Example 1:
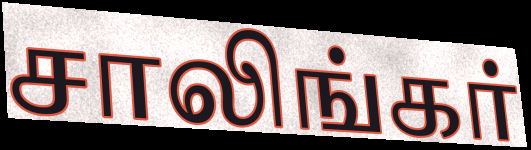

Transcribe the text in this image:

சாலிங்கர்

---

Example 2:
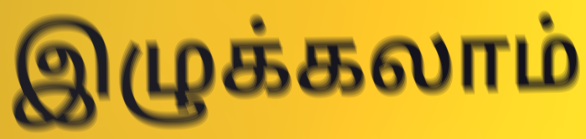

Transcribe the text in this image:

இழுக்கலாம்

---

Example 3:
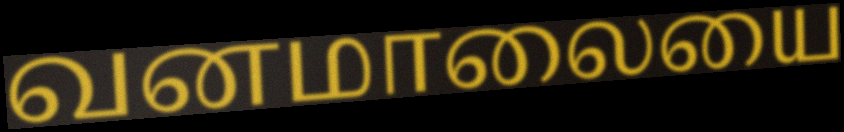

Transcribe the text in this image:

வனமாலையை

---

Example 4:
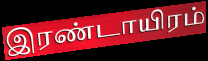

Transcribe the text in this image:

இரண்டாயிரம்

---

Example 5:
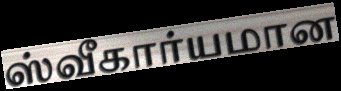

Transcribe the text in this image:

ஸ்வீகார்யமான